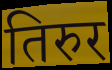
तिरुर